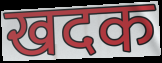
खदक